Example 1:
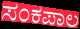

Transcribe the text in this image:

ಸಂಕಪಾಲ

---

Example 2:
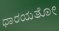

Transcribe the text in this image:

ಧಾರಯತೋ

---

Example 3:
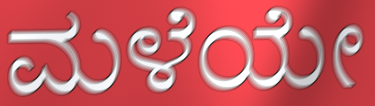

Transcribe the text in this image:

ಮಳೆಯೇ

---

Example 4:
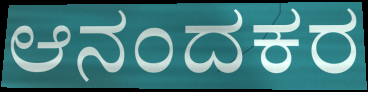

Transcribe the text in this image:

ಆನಂದಕರ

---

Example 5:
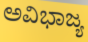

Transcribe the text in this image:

ಅವಿಭಾಜ್ಯ